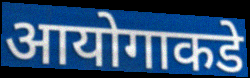
आयोगाकडे